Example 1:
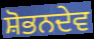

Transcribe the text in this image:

ਸ਼ੋਭਨਦੇਵ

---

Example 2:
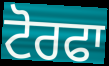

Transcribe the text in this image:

ਟੋਰਫਾ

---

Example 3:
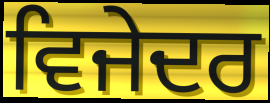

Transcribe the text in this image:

ਵਿਜੇਦਰ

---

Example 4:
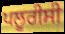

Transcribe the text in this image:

ਪਲੂਰੀਸੀ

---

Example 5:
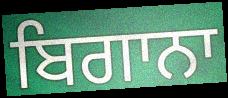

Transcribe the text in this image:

ਬਿਗਾਨਾ